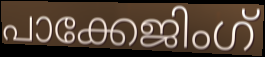
പാക്കേജിംഗ്